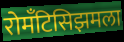
रोमँटिसिझमला